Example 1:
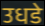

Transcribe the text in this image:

उधडे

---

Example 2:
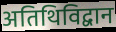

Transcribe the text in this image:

अतिथिविद्वान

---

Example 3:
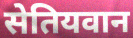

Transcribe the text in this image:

सेतियवान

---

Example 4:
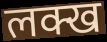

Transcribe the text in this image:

लक्ख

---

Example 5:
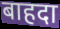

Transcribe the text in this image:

बाहदा